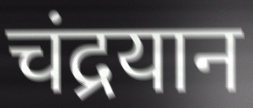
चंद्रयान